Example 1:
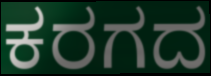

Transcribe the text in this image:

ಕರಗದ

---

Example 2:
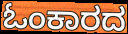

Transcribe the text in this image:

ಓಂಕಾರದ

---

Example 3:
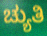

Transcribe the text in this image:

ಚ್ಯುತಿ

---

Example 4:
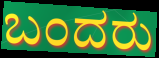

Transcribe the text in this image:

ಬಂದರು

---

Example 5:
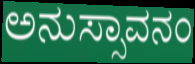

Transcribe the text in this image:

ಅನುಸ್ಸಾವನಂ